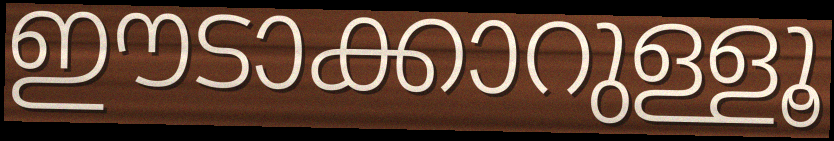
ഈടാക്കാറുള്ളൂ